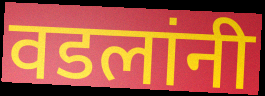
वडलांनी